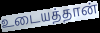
உடையத்தான்